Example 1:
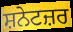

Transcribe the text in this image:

ਸ਼ਨੇਟਜ਼ਰ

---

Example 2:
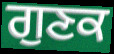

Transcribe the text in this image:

ਗੁਣਕ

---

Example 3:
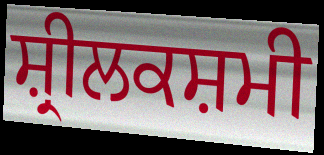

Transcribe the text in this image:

ਸ਼੍ਰੀਲਕਸ਼ਮੀ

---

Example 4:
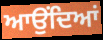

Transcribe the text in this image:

ਆਉਂਦਿਆਂ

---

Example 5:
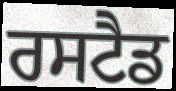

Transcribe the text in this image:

ਰਸਟੈਡ